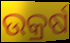
ଉକ୍ରର୍ଷ